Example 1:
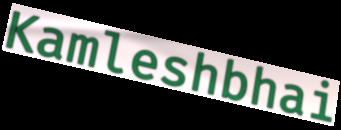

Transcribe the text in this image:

Kamleshbhai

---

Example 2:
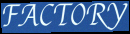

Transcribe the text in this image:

FACTORY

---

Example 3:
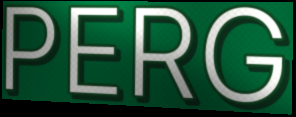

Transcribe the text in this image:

PERG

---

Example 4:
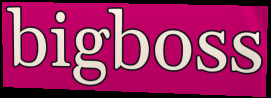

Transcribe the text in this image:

bigboss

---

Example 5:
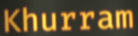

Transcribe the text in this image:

Khurram